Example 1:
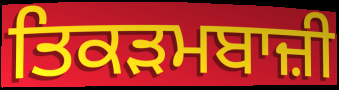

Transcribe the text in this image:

ਤਿਕੜਮਬਾਜ਼ੀ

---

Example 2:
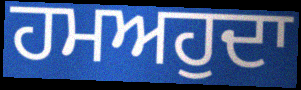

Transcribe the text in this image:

ਹਮਅਹੁਦਾ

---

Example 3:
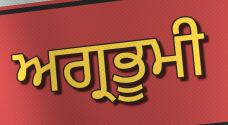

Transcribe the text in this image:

ਅਗ੍ਰਭੂਮੀ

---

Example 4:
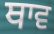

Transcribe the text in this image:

ਥਾਵ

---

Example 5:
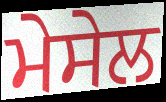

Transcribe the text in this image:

ਮੇਸੇਲ